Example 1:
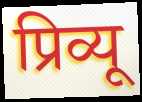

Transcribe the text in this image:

प्रिव्यू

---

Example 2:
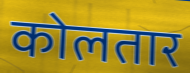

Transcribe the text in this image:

कोलतार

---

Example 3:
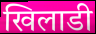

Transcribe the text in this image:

खिलाडी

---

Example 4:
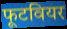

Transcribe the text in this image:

फूटवियर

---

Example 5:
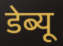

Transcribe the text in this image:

डेब्यू